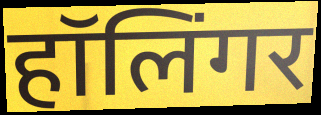
हॉलिंगर